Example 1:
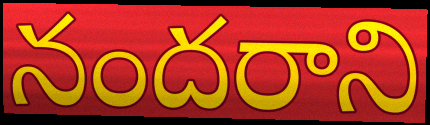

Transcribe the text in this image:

నందరాని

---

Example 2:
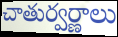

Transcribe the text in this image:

చాతుర్వర్ణాలు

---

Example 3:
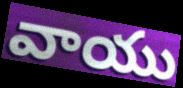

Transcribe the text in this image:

వాయు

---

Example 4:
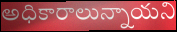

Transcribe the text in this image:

అధికారాలున్నాయని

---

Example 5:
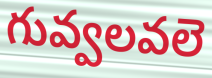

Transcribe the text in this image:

గువ్వలవలె